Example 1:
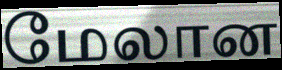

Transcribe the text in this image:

மேலான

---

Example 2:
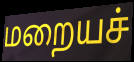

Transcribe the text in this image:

மறையச்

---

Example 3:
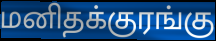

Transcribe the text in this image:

மனிதக்குரங்கு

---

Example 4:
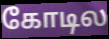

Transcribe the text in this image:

கோடில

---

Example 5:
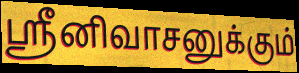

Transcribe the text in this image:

ஸ்ரீனிவாசனுக்கும்